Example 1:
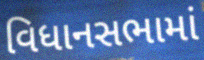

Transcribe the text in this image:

વિધાનસભામાં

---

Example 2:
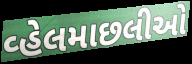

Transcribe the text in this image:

વ્હેલમાછલીઓ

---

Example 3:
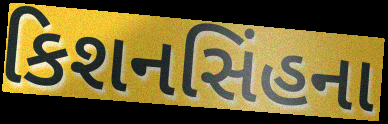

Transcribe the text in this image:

કિશનસિંહના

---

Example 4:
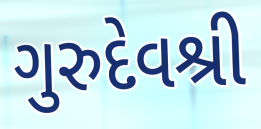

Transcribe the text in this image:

ગુરુદેવશ્રી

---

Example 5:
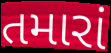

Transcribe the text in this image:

તમારાં